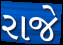
રાજે